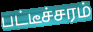
பட்டீச்சரம்